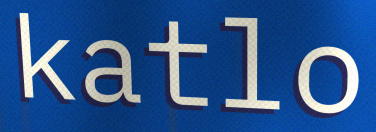
katlo